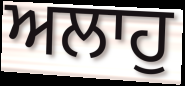
ਅਲਾਹੁ